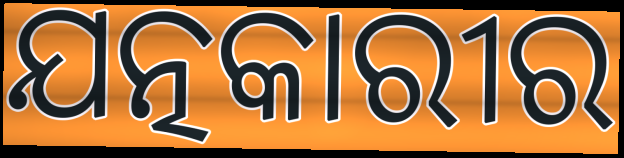
ଯତ୍ନକାରୀର